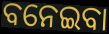
ବନେଇବା